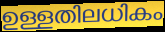
ഉള്ളതിലധികം